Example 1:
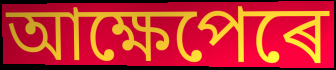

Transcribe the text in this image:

আক্ষেপেৰে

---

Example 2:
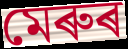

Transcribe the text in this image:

মেৰুৰ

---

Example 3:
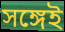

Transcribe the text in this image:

সঙ্গেই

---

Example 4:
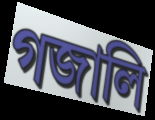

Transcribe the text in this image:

গজালি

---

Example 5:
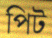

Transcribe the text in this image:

পিট